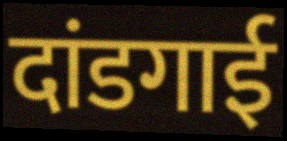
दांडगाई